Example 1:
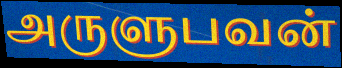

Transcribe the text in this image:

அருளுபவன்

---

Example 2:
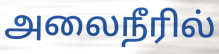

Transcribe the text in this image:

அலைநீரில்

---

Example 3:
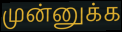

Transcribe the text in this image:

முன்னுக்க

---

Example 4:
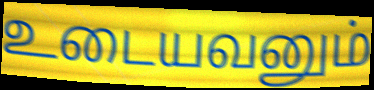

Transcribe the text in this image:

உடையவனும்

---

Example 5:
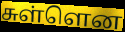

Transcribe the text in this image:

சுள்ளென